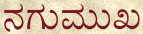
ನಗುಮುಖ